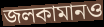
জলকামানও